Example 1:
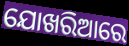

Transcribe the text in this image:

ଯୋଖରିଆରେ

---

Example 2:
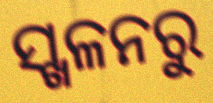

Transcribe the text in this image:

ସ୍ଖଳନରୁ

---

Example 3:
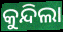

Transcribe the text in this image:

କୁନ୍ଦିଲା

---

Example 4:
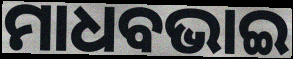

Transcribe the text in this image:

ମାଧବଭାଇ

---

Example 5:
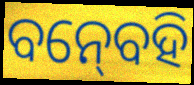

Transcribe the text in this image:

ବନ୍‍ବେହି